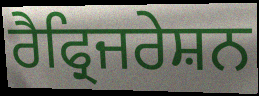
ਰੈਫ੍ਰਿਜਰੇਸ਼ਨ